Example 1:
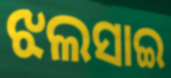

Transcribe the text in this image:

ଝଲସାଇ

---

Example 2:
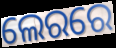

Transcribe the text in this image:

ଲେରରେ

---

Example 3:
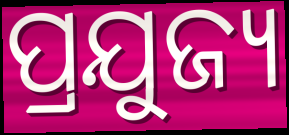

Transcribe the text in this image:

ପ୍ରଯୁଜ୍ୟ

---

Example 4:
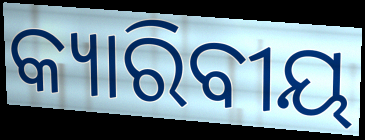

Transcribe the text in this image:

କ୍ୟାରିବୀୟ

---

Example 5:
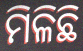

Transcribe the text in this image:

ମିଳିଛି